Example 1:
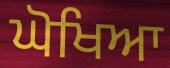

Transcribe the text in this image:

ਘੋਖਿਆ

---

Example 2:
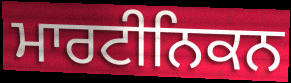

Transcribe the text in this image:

ਮਾਰਟੀਨਿਕਨ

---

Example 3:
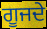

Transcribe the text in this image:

ਗੂਜਦੇ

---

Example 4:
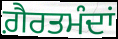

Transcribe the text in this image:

ਗ਼ੈਰਤਮੰਦਾਂ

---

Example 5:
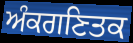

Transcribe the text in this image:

ਅੰਕਗਣਿਤਕ